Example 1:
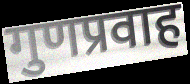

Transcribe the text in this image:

गुणप्रवाह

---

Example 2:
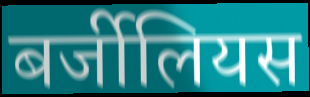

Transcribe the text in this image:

बर्जीलियस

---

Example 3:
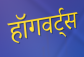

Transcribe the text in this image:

हॉगवर्ट्स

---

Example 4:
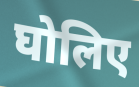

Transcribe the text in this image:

घोलिए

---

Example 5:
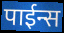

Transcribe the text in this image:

पाईन्स